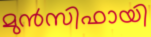
മുൻസിഫായി